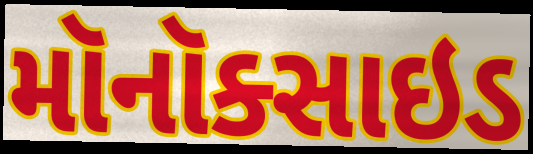
મૉનૉક્સાઇડ